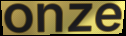
onze